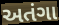
અતંગા